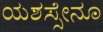
ಯಶಸ್ಸೇನೂ